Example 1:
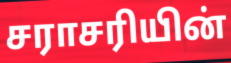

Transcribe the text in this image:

சராசரியின்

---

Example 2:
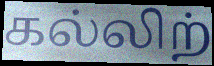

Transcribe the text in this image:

கல்லிற்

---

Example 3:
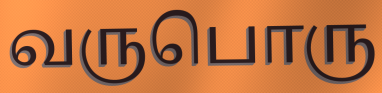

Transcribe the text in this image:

வருபொரு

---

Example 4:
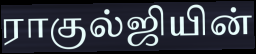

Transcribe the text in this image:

ராகுல்ஜியின்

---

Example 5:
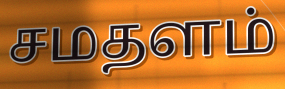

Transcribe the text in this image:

சமதளம்